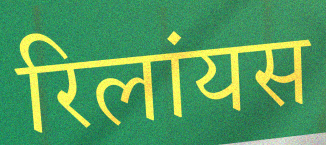
रिलांयस